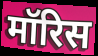
मॉरिस